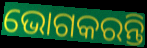
ଭୋଗକରନ୍ତି